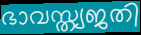
ഭാവസ്ത്യജതി